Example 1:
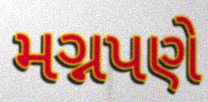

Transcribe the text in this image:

મગ્નપણે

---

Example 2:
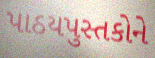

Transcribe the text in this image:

પાઠયપુસ્તકોને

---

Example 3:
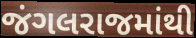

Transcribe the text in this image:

જંગલરાજમાંથી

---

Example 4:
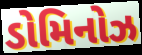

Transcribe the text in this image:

ડોમિનોઝ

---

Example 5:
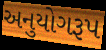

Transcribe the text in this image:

અનુયોગરૂપ